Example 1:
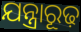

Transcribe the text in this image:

ଯନ୍ତ୍ରାରୂଢ଼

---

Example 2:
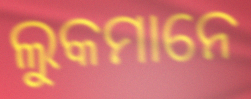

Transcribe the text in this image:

ଲୁକମାନେ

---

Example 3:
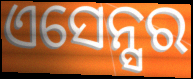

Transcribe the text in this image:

ଏସେନ୍ସର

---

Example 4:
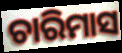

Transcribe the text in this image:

ଚାରିମାସ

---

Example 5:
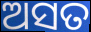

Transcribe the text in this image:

ଅସତ